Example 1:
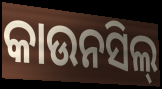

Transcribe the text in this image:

କାଉନସିଲ୍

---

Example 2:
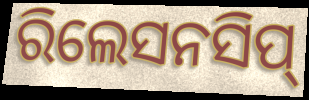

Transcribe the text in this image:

ରିଲେସନସିପ୍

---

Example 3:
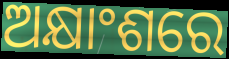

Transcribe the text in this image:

ଅକ୍ଷାଂଶରେ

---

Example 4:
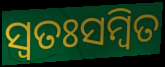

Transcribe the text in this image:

ସ୍ୱତଃସମ୍ବିତ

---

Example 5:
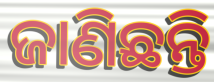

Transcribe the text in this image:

ଜାଣିଛନ୍ତି